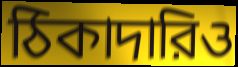
ঠিকাদারিও